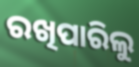
ରଖିପାରିଲୁ